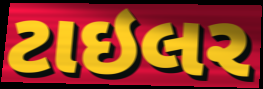
ટાઇલર